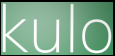
kulo